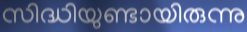
സിദ്ധിയുണ്ടായിരുന്നു